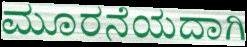
ಮೂರನೆಯದಾಗಿ